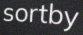
sortby